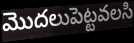
మొదలుపెట్టవలసి